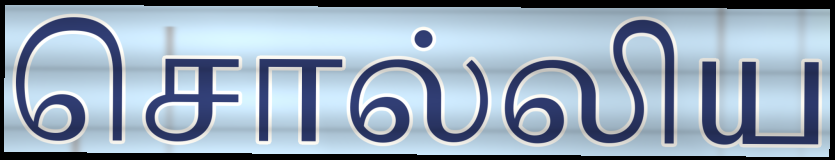
சொல்லிய